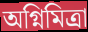
অগ্নিমিত্রা